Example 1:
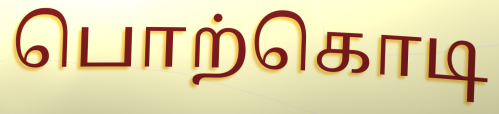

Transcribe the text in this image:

பொற்கொடி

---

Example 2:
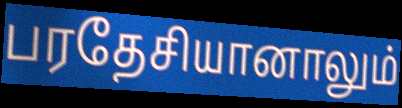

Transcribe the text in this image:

பரதேசியானாலும்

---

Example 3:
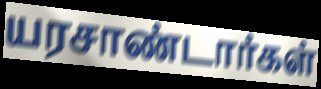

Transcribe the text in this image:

யரசாண்டார்கள்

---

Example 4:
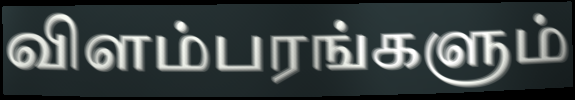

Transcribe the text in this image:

விளம்பரங்களும்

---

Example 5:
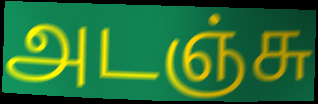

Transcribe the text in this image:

அடஞ்சு